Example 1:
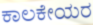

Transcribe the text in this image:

ಕಾಲಕೇಯರ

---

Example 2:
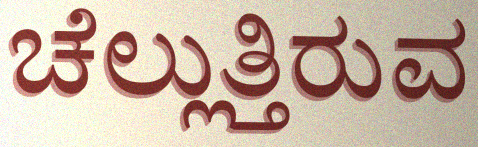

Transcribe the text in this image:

ಚೆಲ್ಲುತ್ತಿರುವ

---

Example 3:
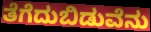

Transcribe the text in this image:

ತೆಗೆದುಬಿಡುವೆನು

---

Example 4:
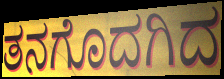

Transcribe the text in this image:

ತನಗೊದಗಿದ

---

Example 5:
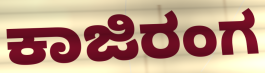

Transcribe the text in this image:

ಕಾಜಿರಂಗ